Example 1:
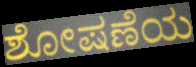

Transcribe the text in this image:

ಶೋಷಣೆಯ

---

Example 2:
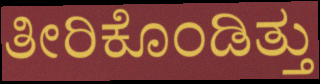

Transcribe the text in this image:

ತೀರಿಕೊಂಡಿತ್ತು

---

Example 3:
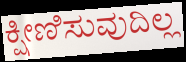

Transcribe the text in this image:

ಕ್ಷೀಣಿಸುವುದಿಲ್ಲ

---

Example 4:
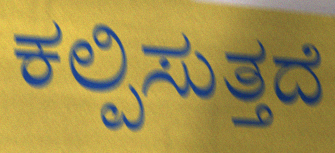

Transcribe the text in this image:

ಕಲ್ಪಿಸುತ್ತದೆ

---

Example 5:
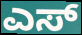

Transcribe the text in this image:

ಎಸ್